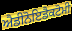
ਐਡੀਨੋਇਡੈਕਟੋਮੀ